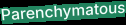
Parenchymatous